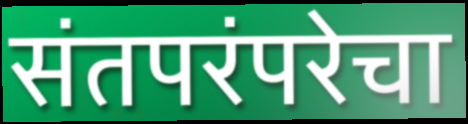
संतपरंपरेचा